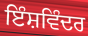
ਇੰਸ਼ਵਿੰਦਰ